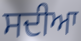
ਸਦੀਆ